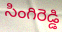
సింగిరెడ్డి